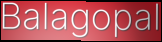
Balagopal